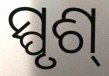
ସ୍ପୃଶ୍